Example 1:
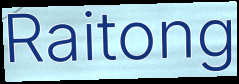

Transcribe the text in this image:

Raitong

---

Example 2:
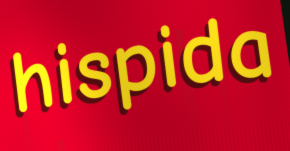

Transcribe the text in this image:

hispida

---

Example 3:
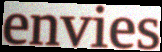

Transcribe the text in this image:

envies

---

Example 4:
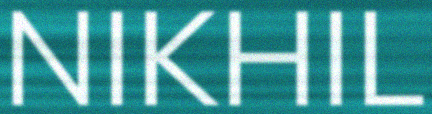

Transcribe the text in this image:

NIKHIL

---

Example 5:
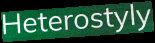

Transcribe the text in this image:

Heterostyly